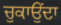
ਚੁਕਾਉਂਦਾ